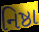
નિષ્ઠા